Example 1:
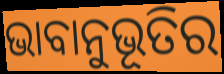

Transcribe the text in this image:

ଭାବାନୁଭୂତିର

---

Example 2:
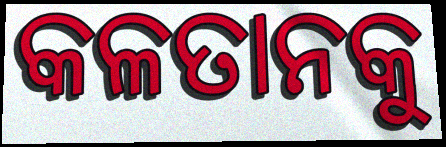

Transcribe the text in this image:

କଳତାନକୁ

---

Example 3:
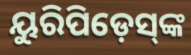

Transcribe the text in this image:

ୟୁରିପିଡ଼େସ୍‌ଙ୍କ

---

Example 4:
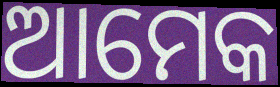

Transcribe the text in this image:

ଆମେକ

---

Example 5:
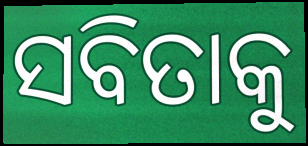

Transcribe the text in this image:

ସବିତାକୁ